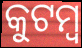
କୁଟମ୍ୱ